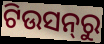
ଟିଉସନ୍‌ରୁ